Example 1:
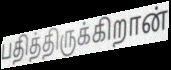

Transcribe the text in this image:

பதித்திருக்கிறான்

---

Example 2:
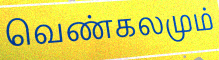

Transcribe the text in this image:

வெண்கலமும்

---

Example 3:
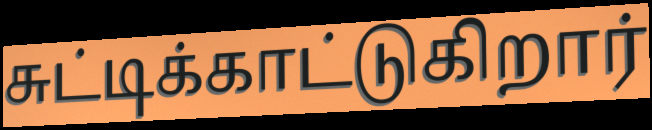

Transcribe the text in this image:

சுட்டிக்காட்டுகிறார்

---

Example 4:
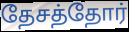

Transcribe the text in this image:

தேசத்தோர்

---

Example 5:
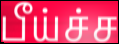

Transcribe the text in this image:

பீய்ச்ச